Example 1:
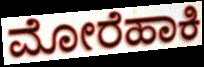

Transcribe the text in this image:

ಮೋರೆಹಾಕಿ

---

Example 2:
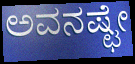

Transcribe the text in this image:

ಅವನಷ್ಟೇ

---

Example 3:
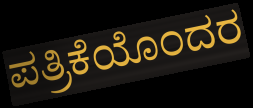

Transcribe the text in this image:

ಪತ್ರಿಕೆಯೊಂದರ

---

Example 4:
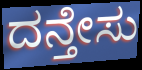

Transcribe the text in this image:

ದನ್ತೇಸು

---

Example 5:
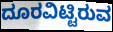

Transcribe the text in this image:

ದೂರವಿಟ್ಟಿರುವ